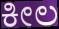
ಕೀಲ